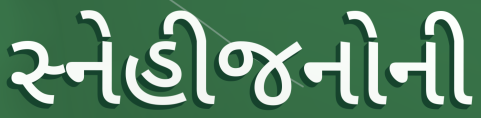
સ્નેહીજનોની